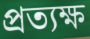
প্রত্যক্ষ